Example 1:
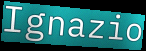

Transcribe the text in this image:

Ignazio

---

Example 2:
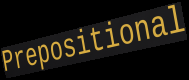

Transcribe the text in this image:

Prepositional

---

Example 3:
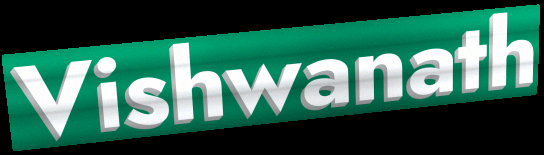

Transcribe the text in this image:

Vishwanath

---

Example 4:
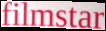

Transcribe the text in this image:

filmstar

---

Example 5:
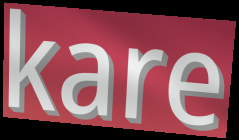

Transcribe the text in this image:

kare